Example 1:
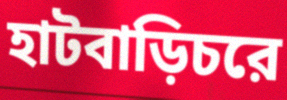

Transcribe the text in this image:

হাটবাড়িচরে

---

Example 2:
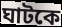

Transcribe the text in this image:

ঘাটকে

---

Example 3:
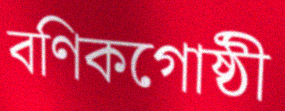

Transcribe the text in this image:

বণিকগোষ্ঠী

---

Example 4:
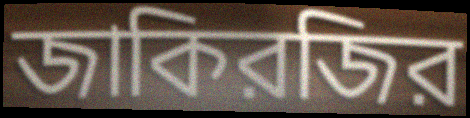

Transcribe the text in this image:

জাকিরজির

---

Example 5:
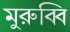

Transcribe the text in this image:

মুরুব্বি